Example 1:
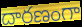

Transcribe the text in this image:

దారణంగా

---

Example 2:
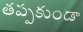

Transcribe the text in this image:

తప్పకుండా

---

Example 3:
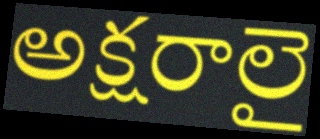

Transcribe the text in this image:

అక్షరాలై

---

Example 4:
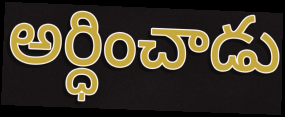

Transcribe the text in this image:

అర్ధించాడు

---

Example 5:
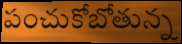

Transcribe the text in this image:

పంచుకోబోతున్న